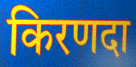
किरणदा